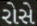
રોસે